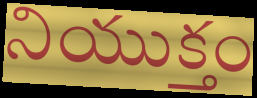
నియుక్తం